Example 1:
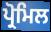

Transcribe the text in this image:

ਪ੍ਰੋਮਿਲ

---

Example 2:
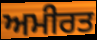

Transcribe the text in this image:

ਅਮੀਰਤ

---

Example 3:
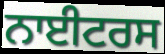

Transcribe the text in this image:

ਨਾਈਟਰਸ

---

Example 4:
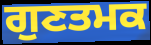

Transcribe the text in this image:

ਗੁਣਤਮਕ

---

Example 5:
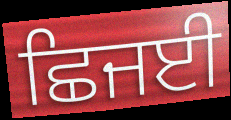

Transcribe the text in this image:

ਛਿਜਈ